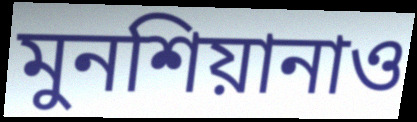
মুনশিয়ানাও